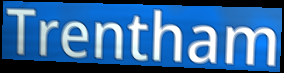
Trentham